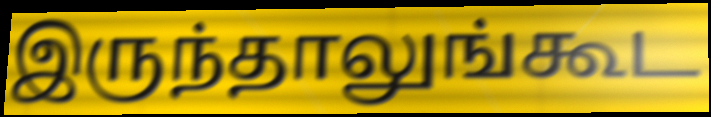
இருந்தாலுங்கூட